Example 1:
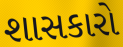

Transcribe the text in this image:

શાસકારો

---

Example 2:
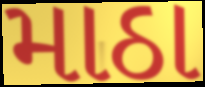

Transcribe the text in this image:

માઠા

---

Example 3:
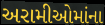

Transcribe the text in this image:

અરામીઓમાંના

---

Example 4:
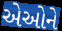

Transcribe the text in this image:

એઓને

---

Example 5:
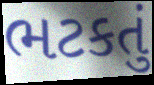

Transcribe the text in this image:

ભટકતું